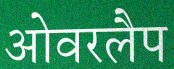
ओवरलैप